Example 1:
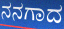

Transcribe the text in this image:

ನನಗಾದ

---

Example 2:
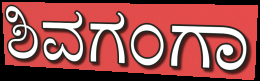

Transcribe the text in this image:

ಶಿವಗಂಗಾ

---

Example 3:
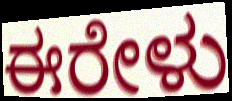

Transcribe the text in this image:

ಈರೇಳು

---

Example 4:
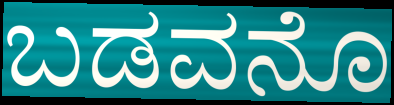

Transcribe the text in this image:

ಬಡವನೊ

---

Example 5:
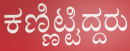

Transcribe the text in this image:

ಕಣ್ಣಿಟ್ಟಿದ್ದರು